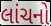
લાંચનો